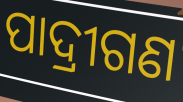
ପାଦ୍ରୀଗଣ